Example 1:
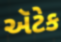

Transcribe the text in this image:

ઍટેક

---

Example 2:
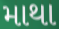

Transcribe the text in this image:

માથા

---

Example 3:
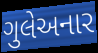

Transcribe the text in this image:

ગુલેઅનાર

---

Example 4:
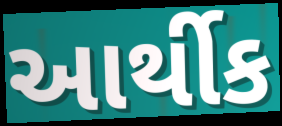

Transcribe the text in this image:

આર્થીક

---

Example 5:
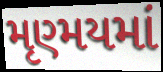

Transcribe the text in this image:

મૃણ્મયમાં